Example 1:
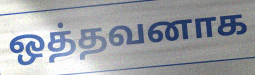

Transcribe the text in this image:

ஒத்தவனாக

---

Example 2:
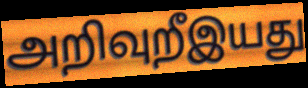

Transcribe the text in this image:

அறிவுறீஇயது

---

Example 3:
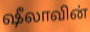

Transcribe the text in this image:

ஷீலாவின்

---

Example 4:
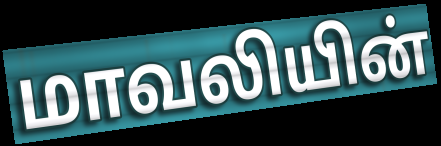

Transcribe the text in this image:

மாவலியின்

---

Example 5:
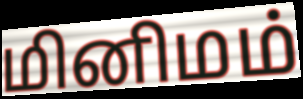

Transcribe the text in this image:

மினிமம்